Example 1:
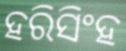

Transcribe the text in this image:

ହରିସିଂହ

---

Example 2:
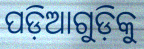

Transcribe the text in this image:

ପଡ଼ିଆଗୁଡ଼ିକୁ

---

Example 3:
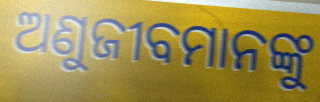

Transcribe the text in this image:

ଅଣୁଜୀବମାନଙ୍କୁ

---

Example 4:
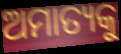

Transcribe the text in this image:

ଅମାତ୍ୟକୁ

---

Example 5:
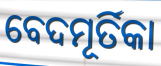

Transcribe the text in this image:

ବେଦମୂର୍ତିକା